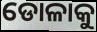
ଡୋଳାକୁ